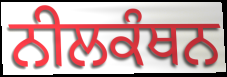
ਨੀਲਕੰਥਨ